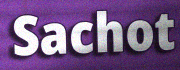
Sachot